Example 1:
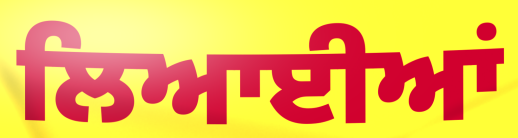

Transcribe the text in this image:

ਲਿਆਈਆਂ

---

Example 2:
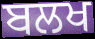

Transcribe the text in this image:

ਬਲਖ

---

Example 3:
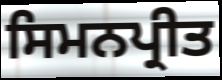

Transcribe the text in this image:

ਸਿਮਨਪ੍ਰੀਤ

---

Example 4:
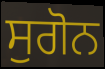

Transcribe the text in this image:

ਸੁਗੋਨ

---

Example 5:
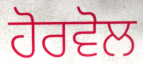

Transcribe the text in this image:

ਹੋਰਵੋਲ